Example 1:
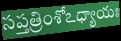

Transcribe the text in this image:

సప్తత్రింశోఽధ్యాయః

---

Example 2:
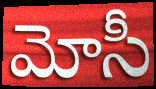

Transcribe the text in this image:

మోసీ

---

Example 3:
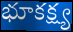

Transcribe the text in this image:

భూకక్ష్య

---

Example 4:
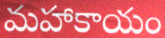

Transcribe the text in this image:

మహాకాయం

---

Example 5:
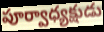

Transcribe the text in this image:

పూర్వాధ్యక్షుడు